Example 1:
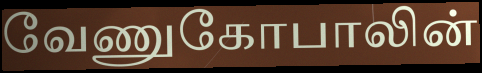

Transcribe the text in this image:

வேணுகோபாலின்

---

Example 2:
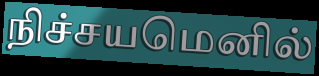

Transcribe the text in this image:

நிச்சயமெனில்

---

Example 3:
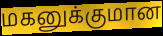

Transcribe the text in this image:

மகனுக்குமான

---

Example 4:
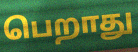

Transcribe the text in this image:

பெறாது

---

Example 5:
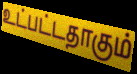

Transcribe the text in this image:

உட்பட்டதாகும்